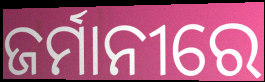
ଜର୍ମାନୀରେ